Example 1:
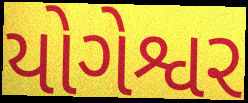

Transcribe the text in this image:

યોગેશ્વર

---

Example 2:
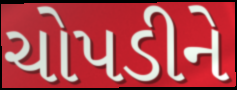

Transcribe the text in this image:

ચોપડીને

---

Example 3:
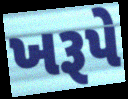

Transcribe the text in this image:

ખરૂપે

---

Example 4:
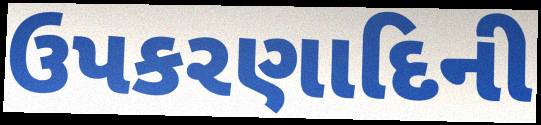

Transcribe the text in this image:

ઉપકરણાદિની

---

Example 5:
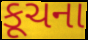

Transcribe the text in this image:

કૂચના